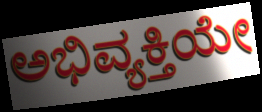
ಅಭಿವ್ಯಕ್ತಿಯೇ